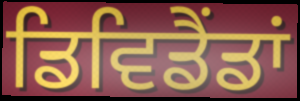
ਡਿਵਿਡੈਂਡਾਂ